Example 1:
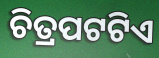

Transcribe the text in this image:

ଚିତ୍ରପଟଟିଏ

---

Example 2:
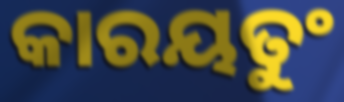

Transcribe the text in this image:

କାରୟତୁଂ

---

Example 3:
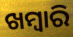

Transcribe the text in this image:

ଖମ୍ୱାରି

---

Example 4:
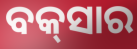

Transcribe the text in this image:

ବକ୍‌ସାର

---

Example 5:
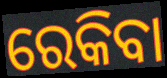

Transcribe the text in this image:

ରେକିବା